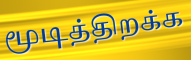
மூடித்திறக்க